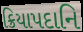
ક્રિયાપદાનિ